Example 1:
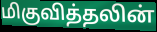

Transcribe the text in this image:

மிகுவித்தலின்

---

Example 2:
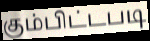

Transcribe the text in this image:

கும்பிட்டபடி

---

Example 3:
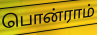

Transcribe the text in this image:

பொன்ராம்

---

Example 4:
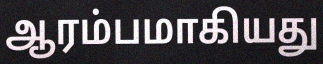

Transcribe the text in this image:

ஆரம்பமாகியது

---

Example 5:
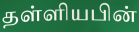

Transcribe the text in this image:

தள்ளியபின்